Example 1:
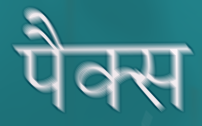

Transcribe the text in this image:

पैक्स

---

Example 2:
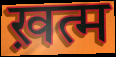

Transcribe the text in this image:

ख़त्म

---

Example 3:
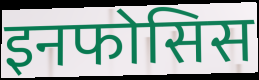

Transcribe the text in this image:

इनफोसिस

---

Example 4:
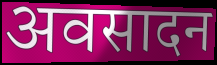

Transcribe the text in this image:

अवसादन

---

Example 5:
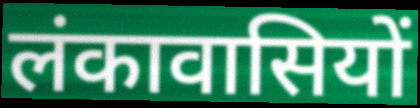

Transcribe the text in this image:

लंकावासियों